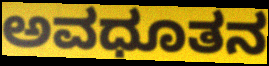
ಅವಧೂತನ